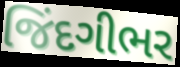
જિંદગીભર